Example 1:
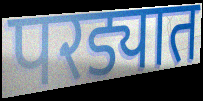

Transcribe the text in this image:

परड्यात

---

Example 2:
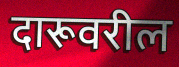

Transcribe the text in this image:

दारूवरील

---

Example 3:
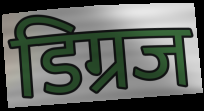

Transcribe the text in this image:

डिग्रज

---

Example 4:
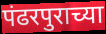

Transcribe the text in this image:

पंढरपुराच्या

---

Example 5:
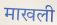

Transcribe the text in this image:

माखली